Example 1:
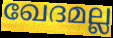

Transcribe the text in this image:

ഖേദമല്ല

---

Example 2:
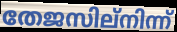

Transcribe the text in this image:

തേജസില്നിന്ന്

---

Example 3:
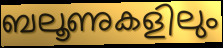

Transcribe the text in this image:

ബലൂണുകളിലും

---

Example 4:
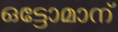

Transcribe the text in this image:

ഒട്ടോമാന്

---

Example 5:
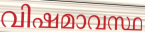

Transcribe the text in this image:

വിഷമാവസ്ഥ